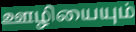
ஊழியையும்